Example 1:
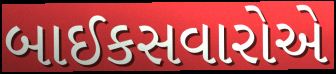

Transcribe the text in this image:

બાઈકસવારોએ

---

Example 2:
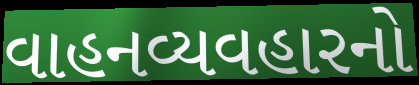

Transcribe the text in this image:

વાહનવ્યવહારનો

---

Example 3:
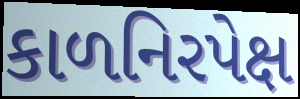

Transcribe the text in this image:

કાળનિરપેક્ષ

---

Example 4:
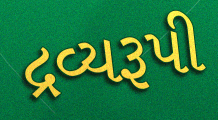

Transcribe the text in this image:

દ્રવ્યરૂપી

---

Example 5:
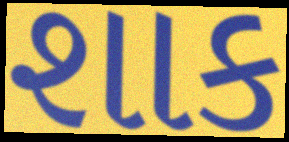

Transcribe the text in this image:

શાક